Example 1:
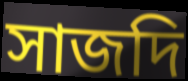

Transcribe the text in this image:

সাজদি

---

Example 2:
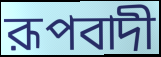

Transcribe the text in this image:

রূপবাদী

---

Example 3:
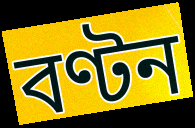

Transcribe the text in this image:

বণ্টন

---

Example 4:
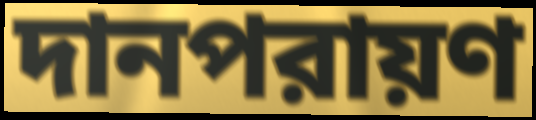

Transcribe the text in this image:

দানপরায়ণ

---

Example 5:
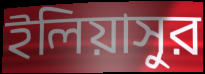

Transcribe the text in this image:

ইলিয়াসুর